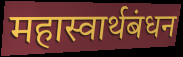
महास्वार्थबंधन